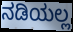
ನಡಿಯಲ್ಲ